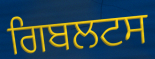
ਗਿਬਲਟਸ